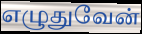
எழுதுவேன்